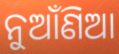
ନୁଆଁଣିଆ